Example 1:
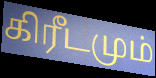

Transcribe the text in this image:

கிரீடமும்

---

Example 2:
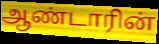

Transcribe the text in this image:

ஆண்டாரின்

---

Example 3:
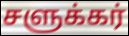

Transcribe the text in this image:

சளுக்கர்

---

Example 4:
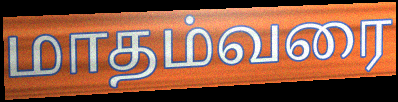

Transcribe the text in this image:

மாதம்வரை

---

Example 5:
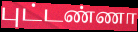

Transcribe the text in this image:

புட்டண்ணா